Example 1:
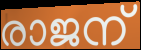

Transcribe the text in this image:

രാജന്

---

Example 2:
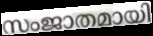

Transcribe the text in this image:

സംജാതമായി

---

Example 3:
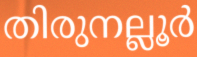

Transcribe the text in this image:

തിരുനല്ലൂർ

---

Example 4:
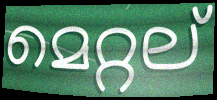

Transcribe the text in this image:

മെറ്റല്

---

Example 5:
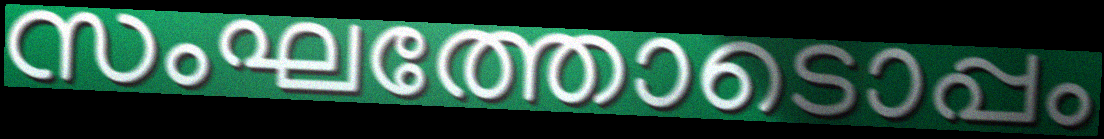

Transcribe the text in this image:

സംഘത്തോടൊപ്പം